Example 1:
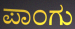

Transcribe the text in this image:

ಪಾಂಗು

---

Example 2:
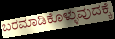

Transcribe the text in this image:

ಬರಮಾಡಿಕೊಳ್ಳುವುದಕ್ಕೆ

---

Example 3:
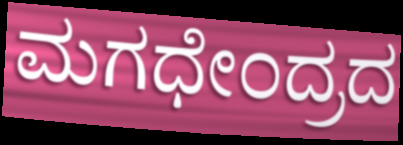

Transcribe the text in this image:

ಮಗಧೇಂದ್ರದ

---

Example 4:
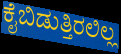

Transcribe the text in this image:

ಕೈಬಿಡುತ್ತಿರಲಿಲ್ಲ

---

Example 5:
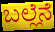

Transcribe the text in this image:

ಬಲ್ಲೆನೆ